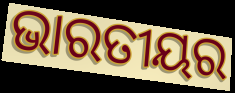
ଭାରତୀୟର